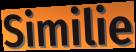
Similie